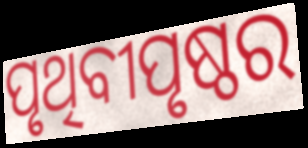
ପୃଥିବୀପୃଷ୍ଠର